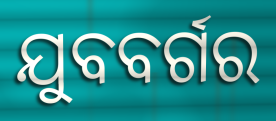
ଯୁବବର୍ଗର